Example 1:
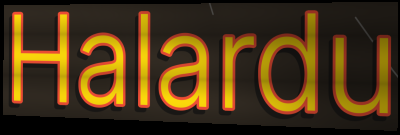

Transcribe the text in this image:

Halardu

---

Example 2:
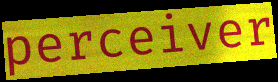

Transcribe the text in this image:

perceiver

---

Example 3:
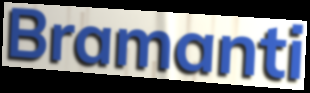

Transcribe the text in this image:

Bramanti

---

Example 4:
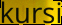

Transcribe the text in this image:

kursi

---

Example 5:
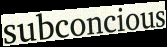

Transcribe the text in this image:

subconcious